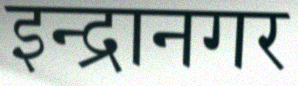
इन्द्रानगर